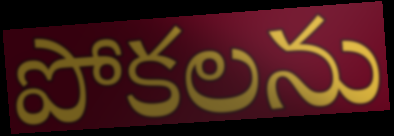
పోకలను